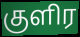
குளிர